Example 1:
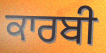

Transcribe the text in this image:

ਕਾਰਬੀ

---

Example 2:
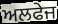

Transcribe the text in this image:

ਅਲਫੇਜ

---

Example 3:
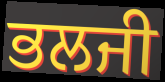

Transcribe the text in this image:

ਭਲਜੀ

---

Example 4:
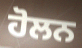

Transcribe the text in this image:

ਹੋਲਨ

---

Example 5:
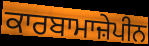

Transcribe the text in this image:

ਕਾਰਬਾਮਾਜ਼ੇਪੀਨ